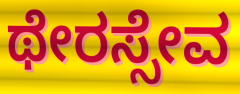
ಥೇರಸ್ಸೇವ